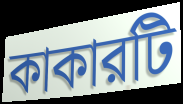
কাকারটি